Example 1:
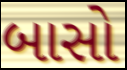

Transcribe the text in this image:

બાસો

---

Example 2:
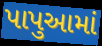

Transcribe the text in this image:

પાપુઆમાં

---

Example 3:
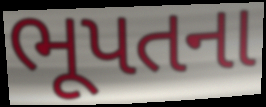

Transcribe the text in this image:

ભૂપતના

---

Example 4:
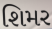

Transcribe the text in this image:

શિમર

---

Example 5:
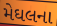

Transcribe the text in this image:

મેઘલના